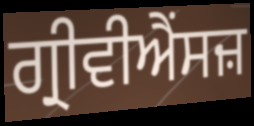
ਗ੍ਰੀਵੀਐਂਸਜ਼